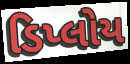
ડિપ્લોય